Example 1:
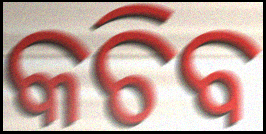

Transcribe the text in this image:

କଚିବ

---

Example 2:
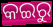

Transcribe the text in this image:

କଇରୁ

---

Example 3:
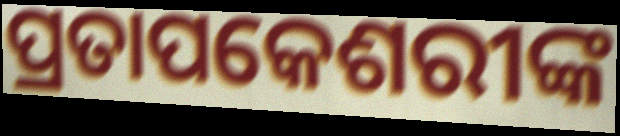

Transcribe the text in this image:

ପ୍ରତାପକେଶରୀଙ୍କ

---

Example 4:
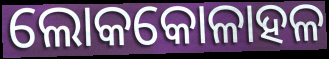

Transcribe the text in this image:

ଲୋକକୋଳାହଳ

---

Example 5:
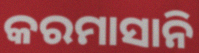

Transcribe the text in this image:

କରମାସାନି